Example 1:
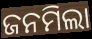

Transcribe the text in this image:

ଜନମିଲା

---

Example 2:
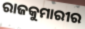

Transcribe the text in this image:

ରାଜକୁମାରୀର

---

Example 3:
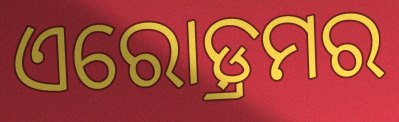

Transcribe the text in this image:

ଏରୋଡ଼୍ରମର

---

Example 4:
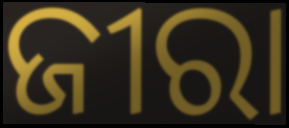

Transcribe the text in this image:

ଜୀରା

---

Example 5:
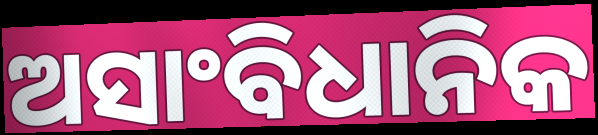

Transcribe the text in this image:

ଅସାଂବିଧାନିକ